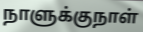
நாளுக்குநாள்